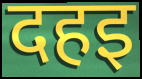
दहइ